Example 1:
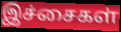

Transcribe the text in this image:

இச்சைகள்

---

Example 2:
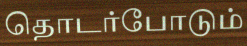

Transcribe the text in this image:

தொடர்போடும்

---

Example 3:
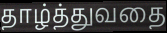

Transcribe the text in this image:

தாழ்த்துவதை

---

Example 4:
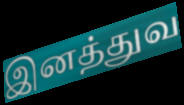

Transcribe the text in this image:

இனத்துவ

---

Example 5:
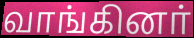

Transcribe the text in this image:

வாங்கினர்